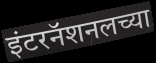
इंटरनॅशनलच्या